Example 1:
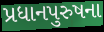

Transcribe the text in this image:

પ્રધાનપુરુષના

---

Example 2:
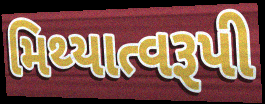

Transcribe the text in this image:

મિથ્યાત્વરૂપી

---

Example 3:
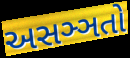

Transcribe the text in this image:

અસઞ્ઞતો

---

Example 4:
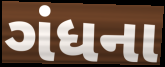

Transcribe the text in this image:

ગંધના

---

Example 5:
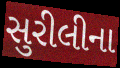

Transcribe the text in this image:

સુરીલીના